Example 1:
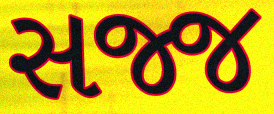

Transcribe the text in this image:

સજ્જ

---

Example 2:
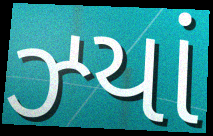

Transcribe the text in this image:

ઝ્યાં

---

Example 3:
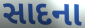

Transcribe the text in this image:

સાદના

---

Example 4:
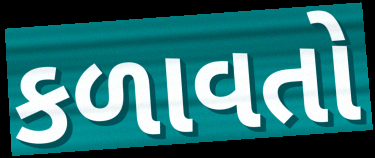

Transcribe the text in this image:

કળાવતો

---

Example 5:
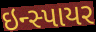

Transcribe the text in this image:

ઇન્સ્પાયર